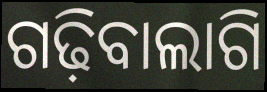
ଗଢ଼ିବାଲାଗି